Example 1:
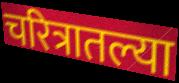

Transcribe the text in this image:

चरित्रातल्या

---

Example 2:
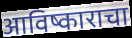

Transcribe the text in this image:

आविष्काराचा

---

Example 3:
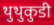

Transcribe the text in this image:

थुथुकुडी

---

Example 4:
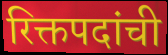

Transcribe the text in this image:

रिक्तपदांची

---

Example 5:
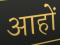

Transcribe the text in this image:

आहों